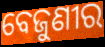
ବେଜୁଣୀର